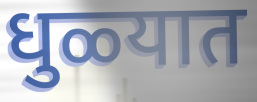
धुळ्यात